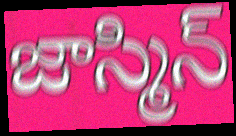
జాస్మిన్